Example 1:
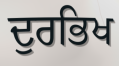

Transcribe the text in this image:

ਦੁਰਭਿਖ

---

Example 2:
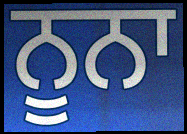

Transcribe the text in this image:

ਨੂਨਾ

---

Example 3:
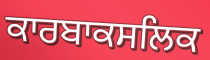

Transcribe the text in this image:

ਕਾਰਬਾਕਸਲਿਕ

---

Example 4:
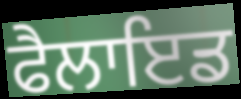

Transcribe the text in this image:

ਫੈਲਾਇਡ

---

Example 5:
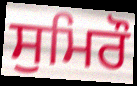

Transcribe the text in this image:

ਸੁਮਿਰੌ